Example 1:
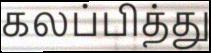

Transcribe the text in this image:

கலப்பித்து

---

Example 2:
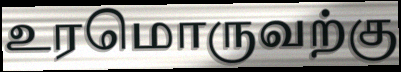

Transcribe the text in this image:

உரமொருவற்கு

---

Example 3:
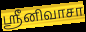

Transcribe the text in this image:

ஸ்ரீனிவாசா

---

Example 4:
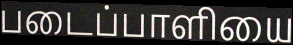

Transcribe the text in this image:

படைப்பாளியை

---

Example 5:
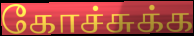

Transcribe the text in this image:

கோச்சுக்க